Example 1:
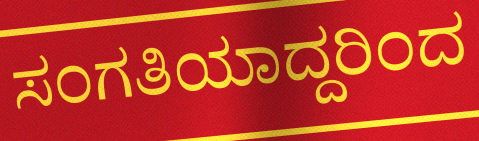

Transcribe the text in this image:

ಸಂಗತಿಯಾದ್ದರಿಂದ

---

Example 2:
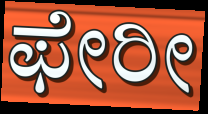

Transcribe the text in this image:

ಫೇರೀ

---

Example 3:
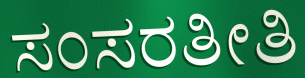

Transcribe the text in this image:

ಸಂಸರತೀತಿ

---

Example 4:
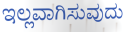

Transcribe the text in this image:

ಇಲ್ಲವಾಗಿಸುವುದು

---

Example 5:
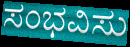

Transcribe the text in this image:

ಸಂಭವಿಸು